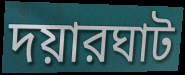
দয়ারঘাট